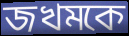
জখমকে